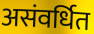
असंवर्धित